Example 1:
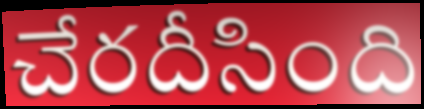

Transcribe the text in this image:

చేరదీసింది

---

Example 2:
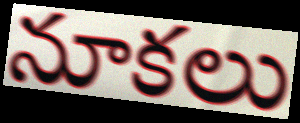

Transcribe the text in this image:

నూకలు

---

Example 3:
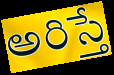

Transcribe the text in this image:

అరిస్తే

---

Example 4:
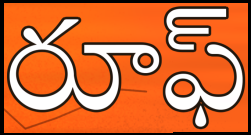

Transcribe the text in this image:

రూఫ్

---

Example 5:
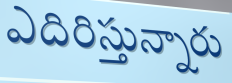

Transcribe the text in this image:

ఎదిరిస్తున్నారు